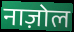
नाज़ोल